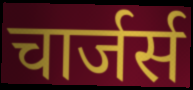
चार्जर्स